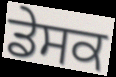
ਡੇਸਕ